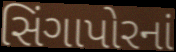
સિંગાપોરનાં